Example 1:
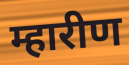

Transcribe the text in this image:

म्हारीण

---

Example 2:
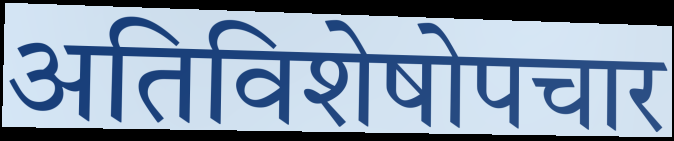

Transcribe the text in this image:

अतिविशेषोपचार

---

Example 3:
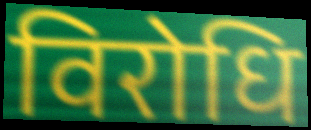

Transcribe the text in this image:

विरोधि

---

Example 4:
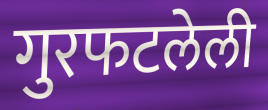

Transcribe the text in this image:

गुरफटलेली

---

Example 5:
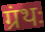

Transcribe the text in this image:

ग्रंथः